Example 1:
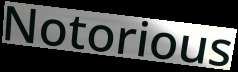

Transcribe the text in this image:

Notorious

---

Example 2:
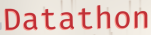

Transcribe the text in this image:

Datathon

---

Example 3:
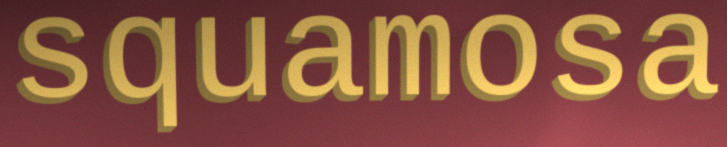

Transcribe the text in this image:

squamosa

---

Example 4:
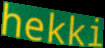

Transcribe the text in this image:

hekki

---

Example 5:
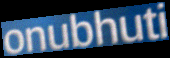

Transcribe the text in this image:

onubhuti